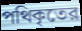
পথিকৃতের